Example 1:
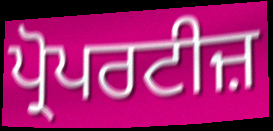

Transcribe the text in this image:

ਪ੍ਰੋਪਰਟੀਜ਼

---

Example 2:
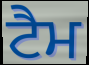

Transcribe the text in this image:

ਟੈਮ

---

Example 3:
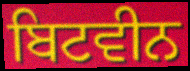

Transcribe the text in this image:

ਬਿਟਵੀਨ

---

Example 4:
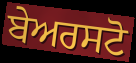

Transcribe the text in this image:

ਬੇਅਰਸਟੋ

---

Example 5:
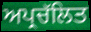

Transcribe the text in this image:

ਅਪ੍ਰਚੱਲਿਤ